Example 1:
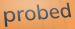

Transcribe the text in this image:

probed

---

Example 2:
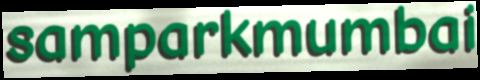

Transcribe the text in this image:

samparkmumbai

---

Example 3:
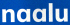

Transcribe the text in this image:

naalu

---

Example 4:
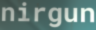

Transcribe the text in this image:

nirgun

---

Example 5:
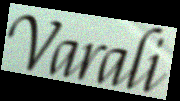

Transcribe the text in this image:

Varali